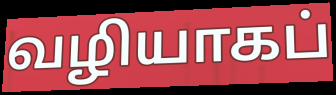
வழியாகப்